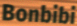
Bonbibi